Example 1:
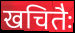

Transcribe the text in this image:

खचितैः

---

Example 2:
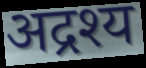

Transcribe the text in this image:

अद्रश्य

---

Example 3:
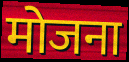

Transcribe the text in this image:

मोजना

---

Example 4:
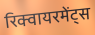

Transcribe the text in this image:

रिक्वायरमेंट्स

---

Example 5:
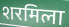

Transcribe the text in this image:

शरमिला